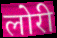
लोरी